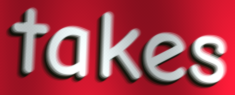
takes